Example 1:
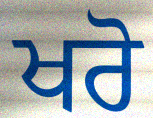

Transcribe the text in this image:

ਖਰੋ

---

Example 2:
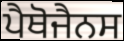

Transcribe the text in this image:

ਪੈਥੋਜੈਨਸ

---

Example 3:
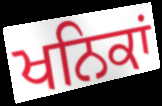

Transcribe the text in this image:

ਖਨਿਕਾਂ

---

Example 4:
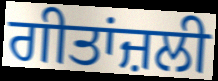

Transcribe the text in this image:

ਗੀਤਾਂਜ਼ਲੀ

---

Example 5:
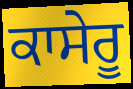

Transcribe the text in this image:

ਕਾਸੇਰੂ